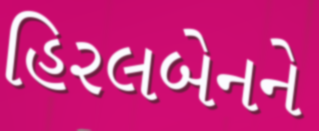
હિરલબેનને